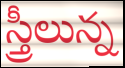
స్త్రీలున్న